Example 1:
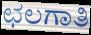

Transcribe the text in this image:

ಛಲಗಾತಿ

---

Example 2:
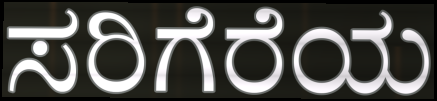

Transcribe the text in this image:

ಸರಿಗೆರೆಯ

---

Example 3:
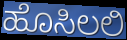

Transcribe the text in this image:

ಹೊಸಿಲಲಿ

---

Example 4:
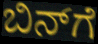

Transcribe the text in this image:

ಬಿನ್‌ಗೆ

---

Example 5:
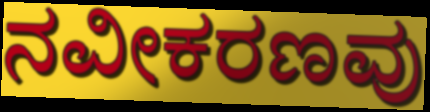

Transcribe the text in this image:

ನವೀಕರಣವು